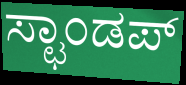
ಸ್ಟಾಂಡಪ್